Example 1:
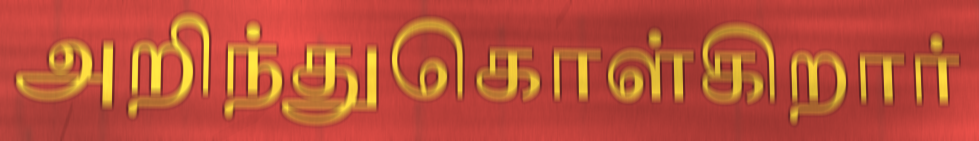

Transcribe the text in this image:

அறிந்துகொள்கிறார்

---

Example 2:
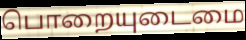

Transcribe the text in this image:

பொறையுடைமை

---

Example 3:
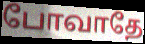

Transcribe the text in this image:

போவாதே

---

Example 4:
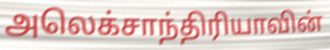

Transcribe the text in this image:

அலெக்சாந்திரியாவின்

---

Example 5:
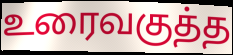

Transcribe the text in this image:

உரைவகுத்த